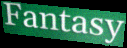
Fantasy